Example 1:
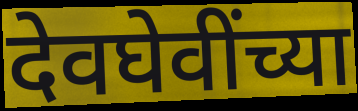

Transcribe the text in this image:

देवघेवींच्या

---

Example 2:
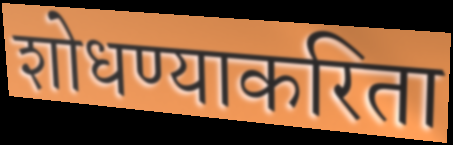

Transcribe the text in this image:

शोधण्याकरिता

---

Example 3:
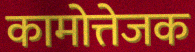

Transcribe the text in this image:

कामोत्तेजक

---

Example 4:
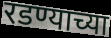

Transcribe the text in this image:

रडण्याच्या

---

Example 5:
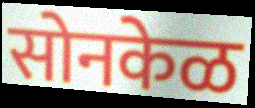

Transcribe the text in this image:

सोनकेळ